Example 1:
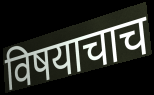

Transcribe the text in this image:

विषयाचाच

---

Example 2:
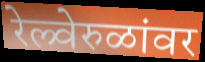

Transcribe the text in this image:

रेल्वेरुळांवर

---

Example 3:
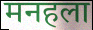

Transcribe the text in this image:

मनहला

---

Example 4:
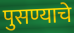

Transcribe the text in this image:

पुसण्याचे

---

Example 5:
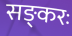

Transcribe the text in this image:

सङ्करः